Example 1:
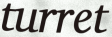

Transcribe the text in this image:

turret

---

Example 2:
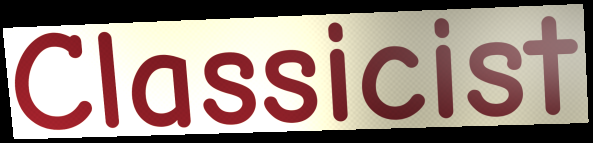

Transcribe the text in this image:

Classicist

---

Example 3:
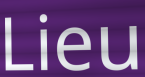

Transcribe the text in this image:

Lieu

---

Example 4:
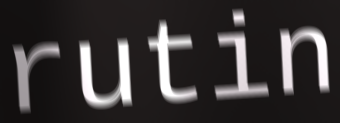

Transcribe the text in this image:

rutin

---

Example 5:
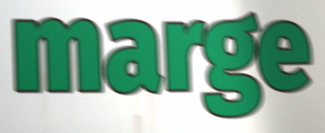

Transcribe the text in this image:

marge